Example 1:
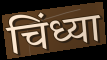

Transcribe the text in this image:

चिंध्या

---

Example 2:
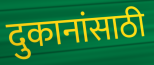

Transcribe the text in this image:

दुकानांसाठी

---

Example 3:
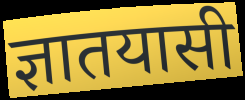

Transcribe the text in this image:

ज्ञातयासी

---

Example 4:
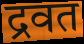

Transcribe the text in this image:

द्रवत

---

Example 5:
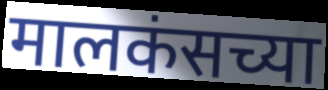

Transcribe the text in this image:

मालकंसच्या